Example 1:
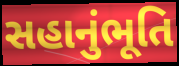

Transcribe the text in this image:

સહાનુંભૂતિ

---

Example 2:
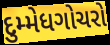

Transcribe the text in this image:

દુમ્મેધગોચરો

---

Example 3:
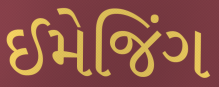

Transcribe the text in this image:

ઈમેજિંગ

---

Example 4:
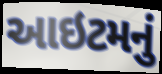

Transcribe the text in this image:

આઇટમનું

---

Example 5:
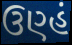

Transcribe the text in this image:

ઉણ્હં